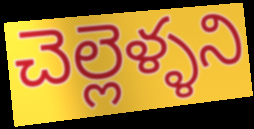
చెల్లెళ్ళని